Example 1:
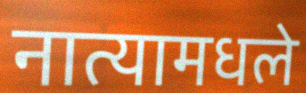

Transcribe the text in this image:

नात्यामधले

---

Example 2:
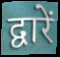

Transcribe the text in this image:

द्वारें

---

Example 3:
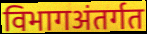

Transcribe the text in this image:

विभागअंतर्गत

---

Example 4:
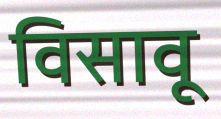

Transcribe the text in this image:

विसावू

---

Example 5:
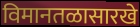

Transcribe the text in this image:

विमानतळासारखे